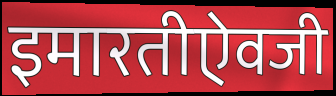
इमारतीऐवजी